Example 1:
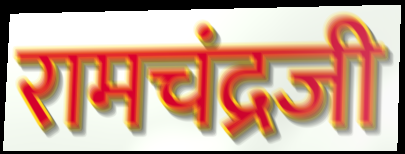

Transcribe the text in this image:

रामचंद्रजी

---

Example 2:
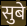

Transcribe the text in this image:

सुबे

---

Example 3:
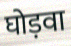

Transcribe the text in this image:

घोड़वा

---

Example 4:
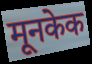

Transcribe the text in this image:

मूनकेक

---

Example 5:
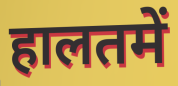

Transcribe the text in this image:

हालतमें